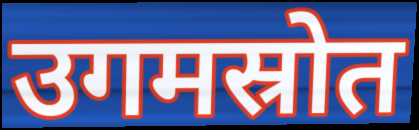
उगमस्रोत